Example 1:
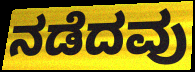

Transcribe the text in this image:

ನಡೆದವು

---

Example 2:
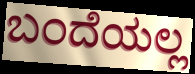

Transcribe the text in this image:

ಬಂದೆಯಲ್ಲ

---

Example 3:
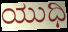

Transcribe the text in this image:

ಯುಧಿ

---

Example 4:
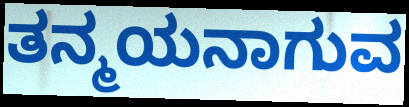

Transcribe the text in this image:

ತನ್ಮಯನಾಗುವ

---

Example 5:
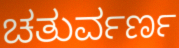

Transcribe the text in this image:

ಚತುರ್ವರ್ಣ